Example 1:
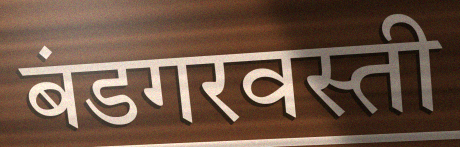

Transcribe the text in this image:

बंडगरवस्ती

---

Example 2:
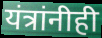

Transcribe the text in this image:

यंत्रांनीही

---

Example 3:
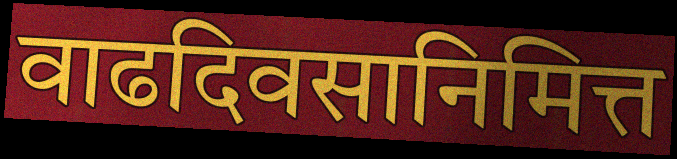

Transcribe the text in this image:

वाढदिवसानिमित्त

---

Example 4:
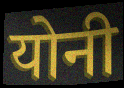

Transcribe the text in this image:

योनी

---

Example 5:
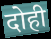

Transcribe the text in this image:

दोही